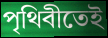
পৃথিবীতেই